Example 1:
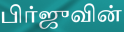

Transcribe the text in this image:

பிர்ஜுவின்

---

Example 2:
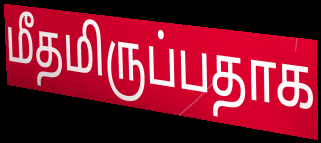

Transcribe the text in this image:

மீதமிருப்பதாக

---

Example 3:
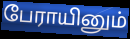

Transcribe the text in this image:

பேராயினும்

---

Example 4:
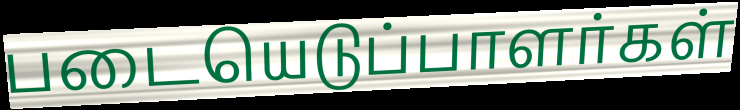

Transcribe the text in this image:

படையெடுப்பாளர்கள்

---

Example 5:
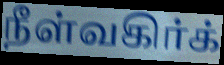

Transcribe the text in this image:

நீள்வகிர்க்